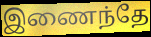
இணைந்தே